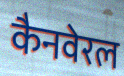
कैनवेरल